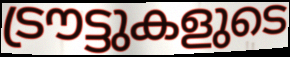
ട്രൗട്ടുകളുടെ